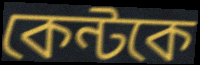
কেন্টকে